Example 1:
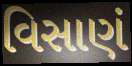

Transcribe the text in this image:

વિસાણં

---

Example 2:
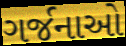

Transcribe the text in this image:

ગર્જનાઓ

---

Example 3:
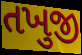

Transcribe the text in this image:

તખુજી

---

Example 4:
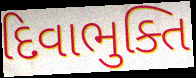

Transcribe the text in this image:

દિવાભુક્તિ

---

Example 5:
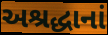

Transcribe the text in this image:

અશ્રદ્ધાનાં